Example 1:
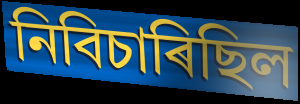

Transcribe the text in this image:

নিবিচাৰিছিল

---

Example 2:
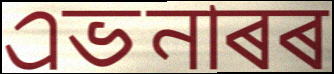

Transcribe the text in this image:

এভনাৰৰ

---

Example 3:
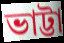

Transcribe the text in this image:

ভাট্টা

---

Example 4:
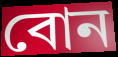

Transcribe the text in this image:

বোন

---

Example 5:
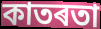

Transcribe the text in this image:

কাতৰতা